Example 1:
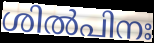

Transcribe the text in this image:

ശിൽപിനഃ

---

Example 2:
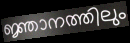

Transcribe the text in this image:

ജ്ഞാനത്തിലും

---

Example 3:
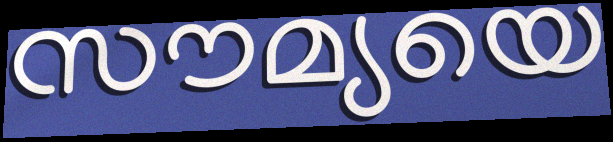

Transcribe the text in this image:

സൗമ്യയെ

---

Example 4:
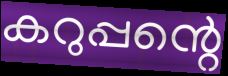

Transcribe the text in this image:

കറുപ്പന്റെ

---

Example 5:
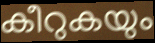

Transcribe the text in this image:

കീറുകയും